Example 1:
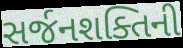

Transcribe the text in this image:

સર્જનશક્તિની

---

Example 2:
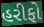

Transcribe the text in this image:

હરીફો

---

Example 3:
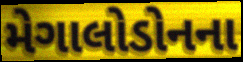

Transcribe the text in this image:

મેગાલોડોનના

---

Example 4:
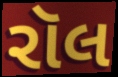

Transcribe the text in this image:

રૉલ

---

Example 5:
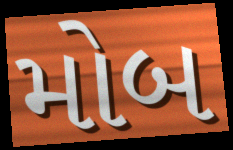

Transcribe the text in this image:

મોબ